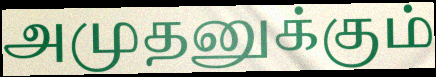
அமுதனுக்கும்